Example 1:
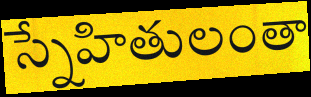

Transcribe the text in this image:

స్నేహితులంతా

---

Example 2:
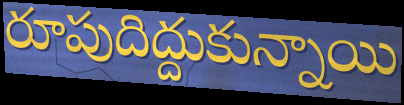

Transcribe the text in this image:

రూపుదిద్దుకున్నాయి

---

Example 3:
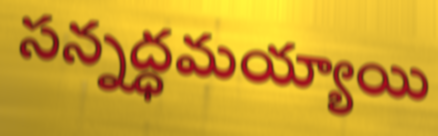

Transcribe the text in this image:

సన్నద్ధమయ్యాయి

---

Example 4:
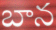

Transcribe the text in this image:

బాన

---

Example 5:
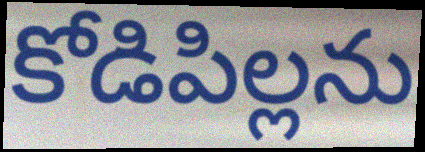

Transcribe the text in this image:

కోడిపిల్లను